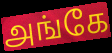
அங்கே